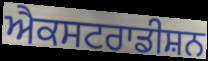
ਐਕਸਟਰਾਡੀਸ਼ਨ